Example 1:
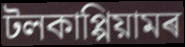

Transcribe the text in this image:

টলকাপ্পিয়ামৰ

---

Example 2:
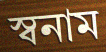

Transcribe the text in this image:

স্বনাম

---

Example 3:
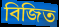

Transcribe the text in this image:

বিজিত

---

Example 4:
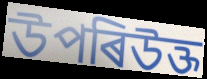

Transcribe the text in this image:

উপৰিউক্ত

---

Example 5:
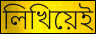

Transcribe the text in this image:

লিখিয়েই